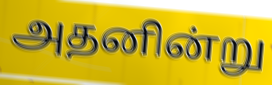
அதனின்று